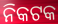
ନିକଟକ